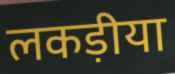
लकड़ीया